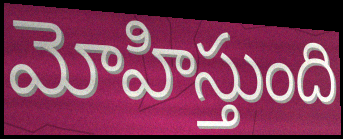
మోహిస్తుంది